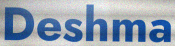
Deshma